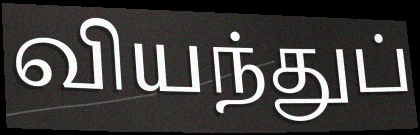
வியந்துப்